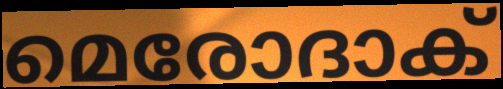
മെരോദാക്